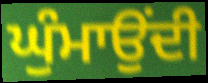
ਘੁੰਮਾਉਂਦੀ